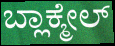
ಬ್ಲಾಕ್ಮೇಲ್